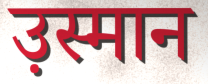
उ़स्मान